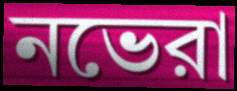
নভেরা